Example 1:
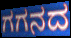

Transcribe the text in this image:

ಗಗನದ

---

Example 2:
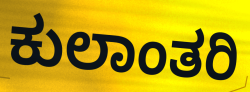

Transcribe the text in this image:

ಕುಲಾಂತರಿ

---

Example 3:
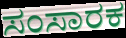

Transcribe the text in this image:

ಸಂಸಾರಕ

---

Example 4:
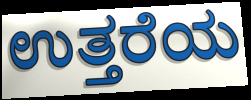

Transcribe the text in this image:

ಉತ್ತರೆಯ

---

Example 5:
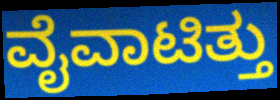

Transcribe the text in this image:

ವೈವಾಟಿತ್ತು